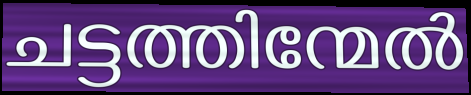
ചട്ടത്തിന്മേൽ